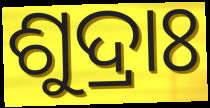
ଶୁଦ୍ରାଃ